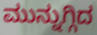
ಮುನ್ನುಗ್ಗಿದ